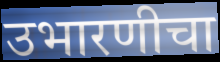
उभारणीचा